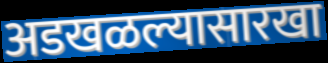
अडखळल्यासारखा